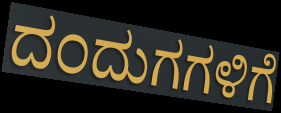
ದಂದುಗಗಳಿಗೆ